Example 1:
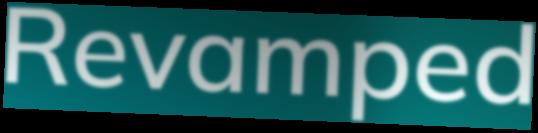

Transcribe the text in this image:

Revamped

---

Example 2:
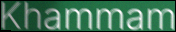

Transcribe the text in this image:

Khammam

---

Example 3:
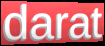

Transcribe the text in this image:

darat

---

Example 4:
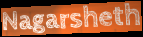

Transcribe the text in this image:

Nagarsheth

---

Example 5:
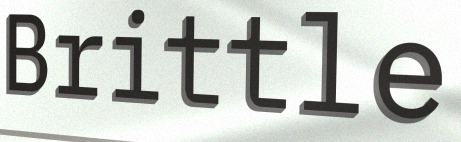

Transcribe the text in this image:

Brittle